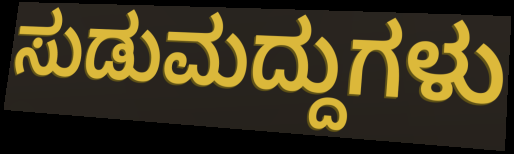
ಸುಡುಮದ್ದುಗಳು